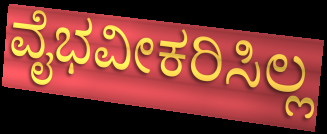
ವೈಭವೀಕರಿಸಿಲ್ಲ